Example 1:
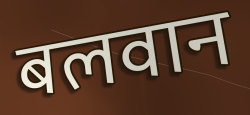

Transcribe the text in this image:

बलवान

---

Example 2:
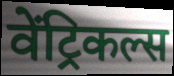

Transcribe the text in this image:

वेंट्रिकल्स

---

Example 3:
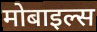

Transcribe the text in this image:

मोबाइल्स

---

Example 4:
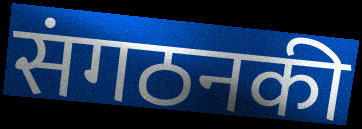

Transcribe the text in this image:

संगठनकी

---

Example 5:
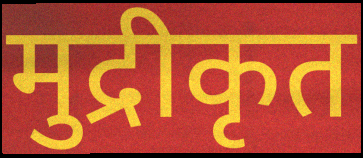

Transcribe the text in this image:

मुद्रीकृत